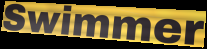
Swimmer